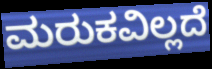
ಮರುಕವಿಲ್ಲದೆ